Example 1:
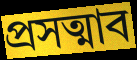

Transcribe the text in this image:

প্রসত্মাব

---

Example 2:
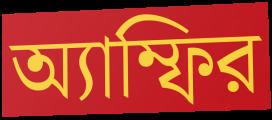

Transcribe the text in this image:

অ্যাম্ফির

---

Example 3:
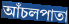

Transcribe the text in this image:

আঁচলপাতা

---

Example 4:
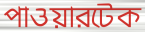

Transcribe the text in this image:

পাওয়ারটেক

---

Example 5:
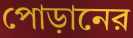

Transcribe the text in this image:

পোড়ানের